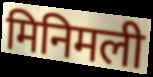
मिनिमली